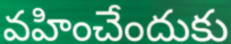
వహించేందుకు